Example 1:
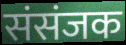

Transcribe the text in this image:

संसंजक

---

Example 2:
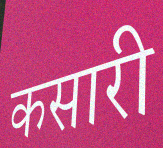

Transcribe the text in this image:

कसारी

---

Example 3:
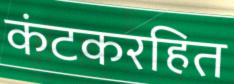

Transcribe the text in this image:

कंटकरहित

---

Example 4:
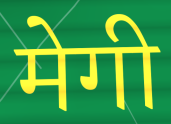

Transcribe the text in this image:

मेगी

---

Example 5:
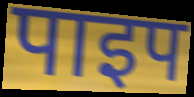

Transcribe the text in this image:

पाइप